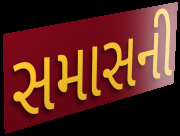
સમાસની